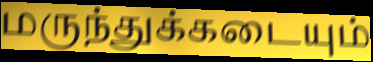
மருந்துக்கடையும்